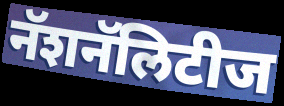
नॅशनॅलिटीज